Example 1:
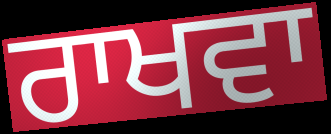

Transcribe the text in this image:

ਰਾਖਵਾ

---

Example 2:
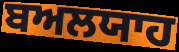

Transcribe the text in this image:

ਬਅਲਯਾਹ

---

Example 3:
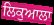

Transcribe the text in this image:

ਲਿਕੁਆਲਾ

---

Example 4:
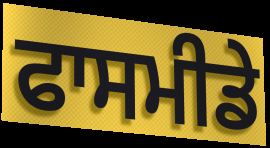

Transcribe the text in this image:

ਫਾਸਮੀਡੇ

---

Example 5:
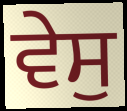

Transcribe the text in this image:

ਵੇਸੁ